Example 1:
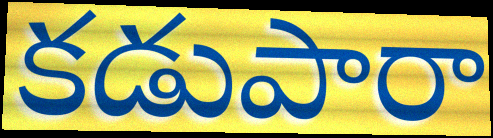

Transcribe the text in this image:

కడుపారా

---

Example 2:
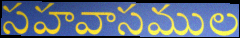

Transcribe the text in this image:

సహవాసముల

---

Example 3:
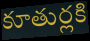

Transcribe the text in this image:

కూతుర్లకి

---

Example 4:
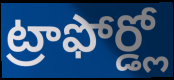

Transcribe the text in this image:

ట్రాఫోర్డ్లో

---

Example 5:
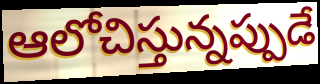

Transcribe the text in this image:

ఆలోచిస్తున్నప్పుడే